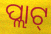
ପ୍ଲାଟ୍